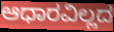
ಆಧಾರವಿಲ್ಲದ